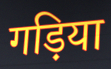
गड़िया